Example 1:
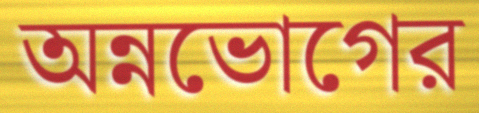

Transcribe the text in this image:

অন্নভোগের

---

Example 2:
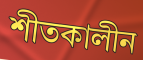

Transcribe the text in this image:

শীতকালীন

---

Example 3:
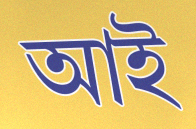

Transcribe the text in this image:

আই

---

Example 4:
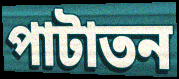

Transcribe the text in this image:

পাটাতন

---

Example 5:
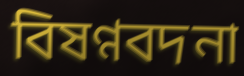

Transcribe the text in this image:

বিষণ্ণবদনা